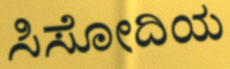
ಸಿಸೋದಿಯ